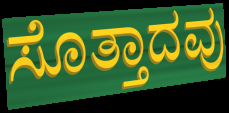
ಸೊತ್ತಾದವು